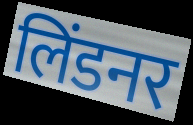
लिंडनर